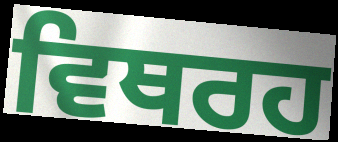
ਵਿਥਰਹ